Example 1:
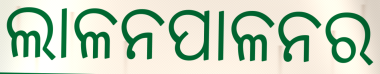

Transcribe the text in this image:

ଲାଳନପାଳନର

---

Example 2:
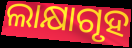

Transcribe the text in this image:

ଲାକ୍ଷାଗୃହ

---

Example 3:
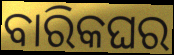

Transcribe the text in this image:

ବାରିକଘର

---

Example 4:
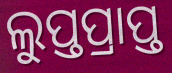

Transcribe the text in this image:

ଲୁପ୍ତପ୍ରାପ୍ତ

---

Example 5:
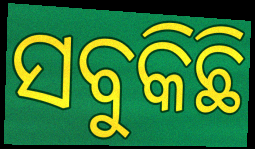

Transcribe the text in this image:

ସବୁକିଛି